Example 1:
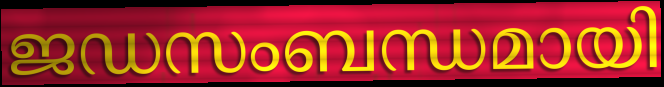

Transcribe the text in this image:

ജഡസംബന്ധമായി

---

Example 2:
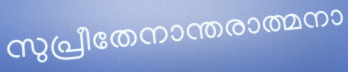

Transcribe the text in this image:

സുപ്രീതേനാന്തരാത്മനാ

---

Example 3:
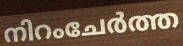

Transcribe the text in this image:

നിറംചേർത്ത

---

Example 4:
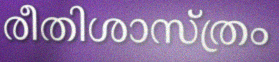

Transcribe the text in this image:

രീതിശാസ്ത്രം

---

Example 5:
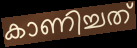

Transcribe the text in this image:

കാണിച്ചത്